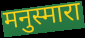
मनुस्मारा